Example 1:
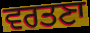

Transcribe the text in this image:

ਵਰਤਣਾ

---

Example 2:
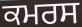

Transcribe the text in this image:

ਕਮਰਸ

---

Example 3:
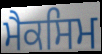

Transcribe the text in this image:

ਮੈਕਸਿਮ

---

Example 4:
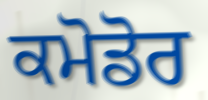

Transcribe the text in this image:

ਕਮੋਡੋਰ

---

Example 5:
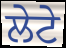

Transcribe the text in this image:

ਲੇਟੇ